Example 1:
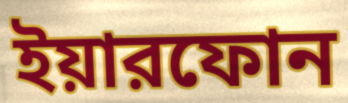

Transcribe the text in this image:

ইয়ারফোন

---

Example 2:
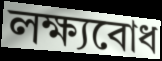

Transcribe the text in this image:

লক্ষ্যবোধ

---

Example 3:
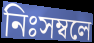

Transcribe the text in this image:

নিঃসম্বলে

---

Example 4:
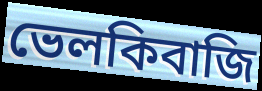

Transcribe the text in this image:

ভেলকিবাজি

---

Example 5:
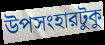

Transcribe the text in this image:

উপসংহারটুকু